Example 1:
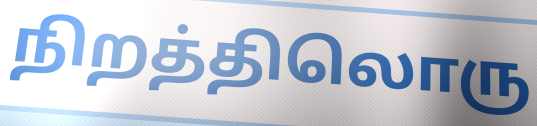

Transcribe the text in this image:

நிறத்திலொரு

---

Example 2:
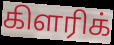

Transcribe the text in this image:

கிளரிக்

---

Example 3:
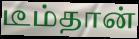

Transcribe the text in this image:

டீம்தான்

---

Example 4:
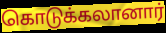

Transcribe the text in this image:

கொடுக்கலானார்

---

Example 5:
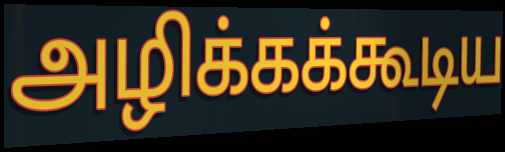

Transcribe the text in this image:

அழிக்கக்கூடிய